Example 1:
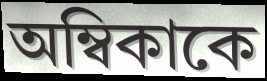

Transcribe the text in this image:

অম্বিকাকে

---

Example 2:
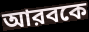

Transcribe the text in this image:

আরবকে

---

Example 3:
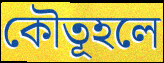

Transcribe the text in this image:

কৌতূহলে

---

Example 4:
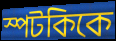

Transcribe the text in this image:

স্পটকিকে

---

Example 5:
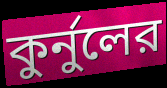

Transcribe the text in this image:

কুর্নুলের